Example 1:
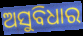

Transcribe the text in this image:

ଅସୁବିଧାର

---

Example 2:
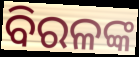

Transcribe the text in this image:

ବିରଳଙ୍କ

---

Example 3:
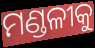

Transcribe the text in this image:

ମଣ୍ଡଳୀକୁ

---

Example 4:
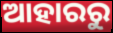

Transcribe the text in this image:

ଆହାରରୁ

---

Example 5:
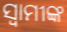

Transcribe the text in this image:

ସ୍ଵାମୀଙ୍କ